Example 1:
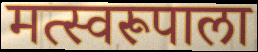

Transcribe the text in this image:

मत्स्वरूपाला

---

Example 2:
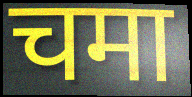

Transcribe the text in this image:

चमा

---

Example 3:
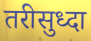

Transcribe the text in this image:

तरीसुध्दा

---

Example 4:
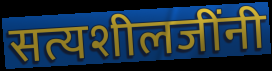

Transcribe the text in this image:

सत्यशीलजींनी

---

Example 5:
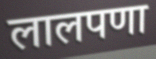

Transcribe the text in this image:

लालपणा